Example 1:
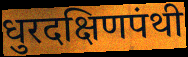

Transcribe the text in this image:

धुरदक्षिणपंथी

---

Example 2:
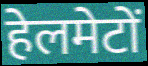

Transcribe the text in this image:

हेलमेटों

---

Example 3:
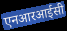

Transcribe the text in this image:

एनआरआईसी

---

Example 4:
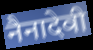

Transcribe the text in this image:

नैनादेवी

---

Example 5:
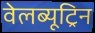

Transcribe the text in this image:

वेलब्यूट्रिन